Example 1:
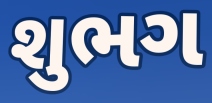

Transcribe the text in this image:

શુભગ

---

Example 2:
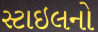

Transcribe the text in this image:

સ્ટાઇલનો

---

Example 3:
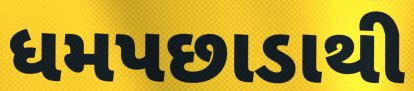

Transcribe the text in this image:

ધમપછાડાથી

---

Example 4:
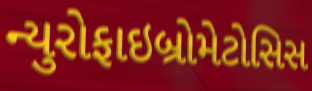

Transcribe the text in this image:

ન્યુરોફાઇબ્રોમેટોસિસ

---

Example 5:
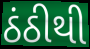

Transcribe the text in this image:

ઠંઠીથી